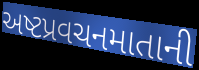
અષ્ટપ્રવચનમાતાની